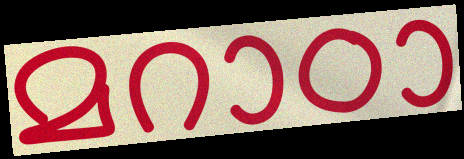
മറാഠാ